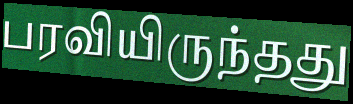
பரவியிருந்தது